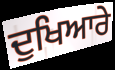
ਦੁਖਿਆਰੇ